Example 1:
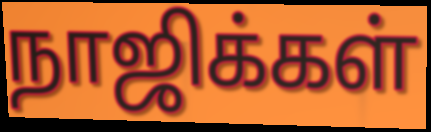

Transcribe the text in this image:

நாஜிக்கள்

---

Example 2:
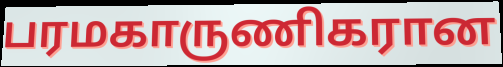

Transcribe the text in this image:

பரமகாருணிகரான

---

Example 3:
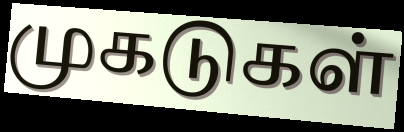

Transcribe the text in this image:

முகடுகள்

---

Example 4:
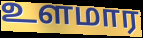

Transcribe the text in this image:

உளமார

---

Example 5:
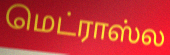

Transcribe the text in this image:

மெட்ராஸ்ல